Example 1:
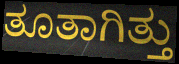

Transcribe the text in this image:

ತೂತಾಗಿತ್ತು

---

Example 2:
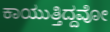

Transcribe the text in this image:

ಕಾಯುತ್ತಿದ್ದವೋ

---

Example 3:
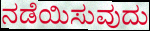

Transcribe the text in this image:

ನಡೆಯಿಸುವುದು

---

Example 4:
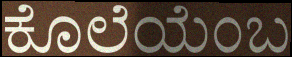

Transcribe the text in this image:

ಕೊಲೆಯೆಂಬ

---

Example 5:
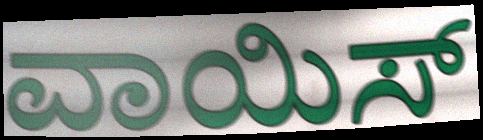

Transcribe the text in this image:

ವಾಯಿಸ್